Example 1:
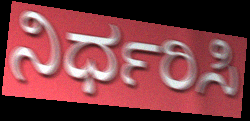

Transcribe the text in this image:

ನಿರ್ಧರಿಸಿ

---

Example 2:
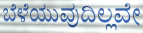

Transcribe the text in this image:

ಬೆಳೆಯುವುದಿಲ್ಲವೇ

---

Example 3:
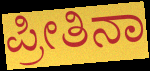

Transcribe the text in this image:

ಪ್ರೀತಿನಾ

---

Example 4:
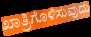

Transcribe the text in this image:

ಖಾತ್ರಿಗೊಳಿಸುವುದು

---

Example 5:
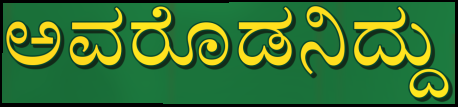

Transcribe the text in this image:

ಅವರೊಡನಿದ್ದು